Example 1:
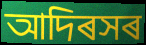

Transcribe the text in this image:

আদিৰসৰ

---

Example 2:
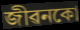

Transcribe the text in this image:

জীৱনকো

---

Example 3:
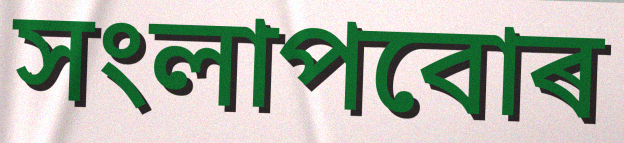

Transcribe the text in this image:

সংলাপবোৰ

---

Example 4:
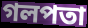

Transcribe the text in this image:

গলপতা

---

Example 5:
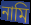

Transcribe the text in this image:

নামি